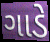
ગાડે